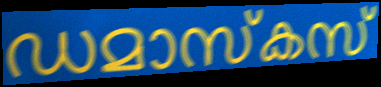
ഡമാസ്കസ്